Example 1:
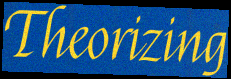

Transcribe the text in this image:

Theorizing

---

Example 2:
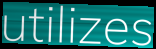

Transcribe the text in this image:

utilizes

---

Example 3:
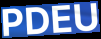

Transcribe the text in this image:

PDEU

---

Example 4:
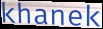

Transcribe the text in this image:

khanek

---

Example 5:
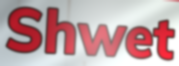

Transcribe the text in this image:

Shwet